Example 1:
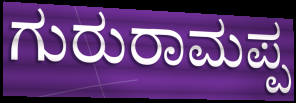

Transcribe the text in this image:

ಗುರುರಾಮಪ್ಪ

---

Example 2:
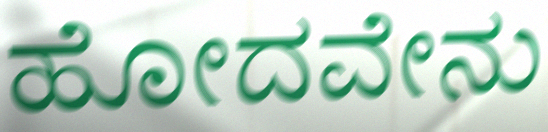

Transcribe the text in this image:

ಹೋದವೇನು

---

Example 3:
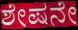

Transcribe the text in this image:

ಶೇಷನೇ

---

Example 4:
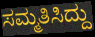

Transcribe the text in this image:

ಸಮ್ಮತಿಸಿದ್ದು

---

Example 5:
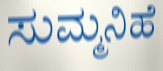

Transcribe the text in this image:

ಸುಮ್ಮನಿಹೆ